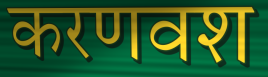
करणवश